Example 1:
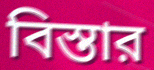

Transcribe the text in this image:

বিস্তার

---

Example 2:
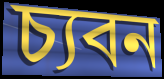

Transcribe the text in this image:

চ্যবন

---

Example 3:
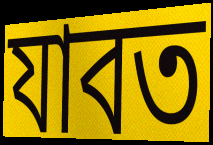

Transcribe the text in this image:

যাবত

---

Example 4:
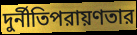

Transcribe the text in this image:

দুর্নীতিপরায়ণতার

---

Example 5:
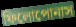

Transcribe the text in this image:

ফিলোপোনাস